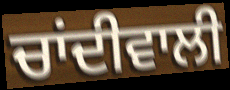
ਚਾਂਦੀਵਾਲੀ